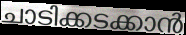
ചാടിക്കടക്കാൻ